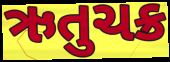
ઋતુચક્ર